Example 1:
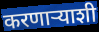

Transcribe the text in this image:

करणाऱ्याशी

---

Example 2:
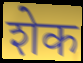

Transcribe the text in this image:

शेक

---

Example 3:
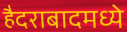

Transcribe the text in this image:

हैदराबादमध्ये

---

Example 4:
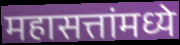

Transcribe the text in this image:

महासत्तांमध्ये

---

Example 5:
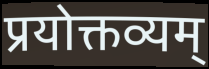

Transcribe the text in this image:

प्रयोक्तव्यम्